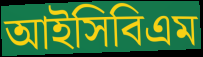
আইসিবিএম